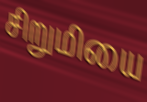
சிறுமியை